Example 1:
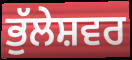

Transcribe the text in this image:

ਭੁੱਲੇਸ਼ਵਰ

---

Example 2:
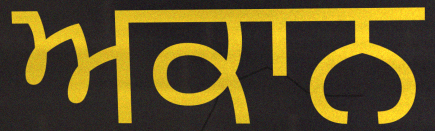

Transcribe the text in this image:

ਅਕਾਨ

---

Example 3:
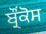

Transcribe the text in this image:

ਬ੍ਰੌਂਕੋਸ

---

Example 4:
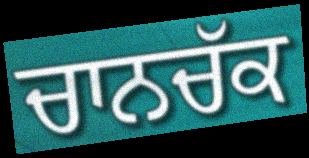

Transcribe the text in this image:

ਚਾਨਚੱਕ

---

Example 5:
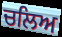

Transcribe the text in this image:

ਚਲਿਅ